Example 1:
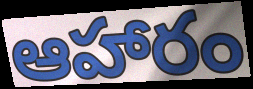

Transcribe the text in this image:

ఆహారం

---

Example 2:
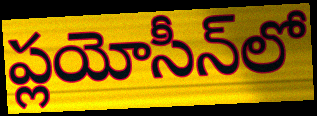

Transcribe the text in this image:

ప్లయోసీన్‌లో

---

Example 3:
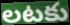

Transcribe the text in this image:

లటకు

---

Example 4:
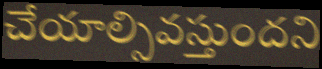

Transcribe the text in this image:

చేయాల్సివస్తుందని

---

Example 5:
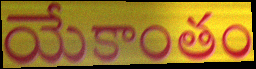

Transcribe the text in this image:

యేకాంతం